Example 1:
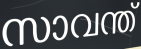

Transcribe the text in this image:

സാവന്ത്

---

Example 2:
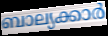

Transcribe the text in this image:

ബാല്യക്കാർ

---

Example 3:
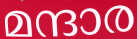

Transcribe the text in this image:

മന്ദാര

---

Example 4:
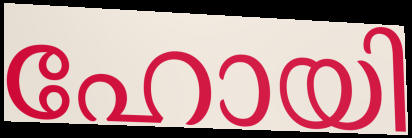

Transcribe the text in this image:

ഹോയി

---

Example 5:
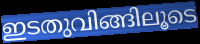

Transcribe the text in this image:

ഇടതുവിങ്ങിലൂടെ